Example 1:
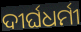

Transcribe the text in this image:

ଦୀର୍ଘଧର୍ମୀ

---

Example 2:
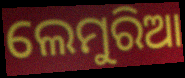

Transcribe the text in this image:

ଲେମୁରିଆ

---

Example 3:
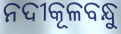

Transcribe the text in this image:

ନଦୀକୂଳବନ୍ଧୁ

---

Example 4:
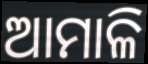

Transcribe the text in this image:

ଆମାଳି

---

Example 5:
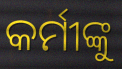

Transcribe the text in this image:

କର୍ମୀଙ୍କୁ